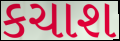
કચાશ